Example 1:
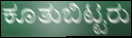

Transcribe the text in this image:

ಕೂತುಬಿಟ್ಟರು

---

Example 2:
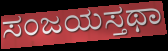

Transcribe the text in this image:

ಸಂಜಯಸ್ತಥಾ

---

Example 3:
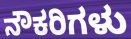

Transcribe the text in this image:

ನೌಕರಿಗಳು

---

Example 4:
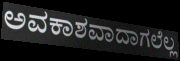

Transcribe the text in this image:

ಅವಕಾಶವಾದಾಗಲೆಲ್ಲ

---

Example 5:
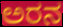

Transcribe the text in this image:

ಅರನ